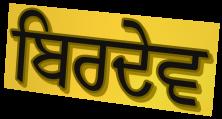
ਬਿਰਦੇਵ